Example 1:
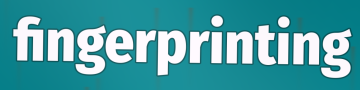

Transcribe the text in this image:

fingerprinting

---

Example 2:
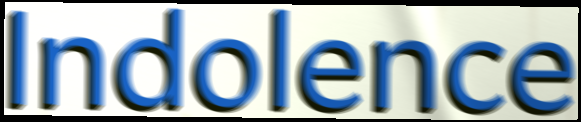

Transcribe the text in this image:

Indolence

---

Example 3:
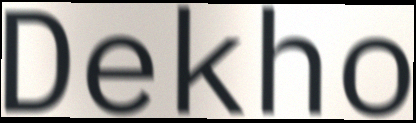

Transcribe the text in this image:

Dekho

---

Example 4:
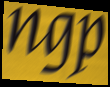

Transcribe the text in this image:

ngp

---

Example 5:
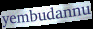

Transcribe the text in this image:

yembudannu